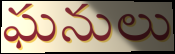
ఘనులు